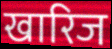
खारिज